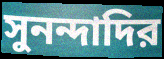
সুনন্দাদির